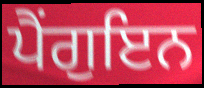
ਪੈਂਗੁਇਨ